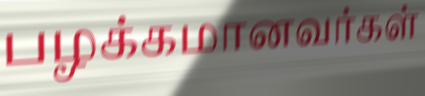
பழக்கமானவர்கள்